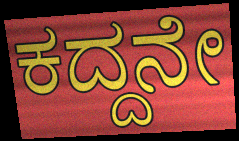
ಕದ್ದನೇ